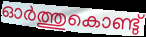
ഓർത്തുകൊണ്ടു്